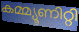
കമ്മ്യൂണിറ്റി